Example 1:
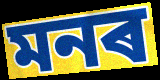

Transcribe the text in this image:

মনৰ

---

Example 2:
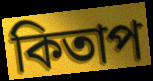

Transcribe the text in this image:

কিতাপ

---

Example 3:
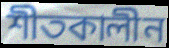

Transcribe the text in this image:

শীতকালীন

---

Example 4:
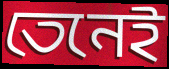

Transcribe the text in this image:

তেনেই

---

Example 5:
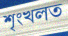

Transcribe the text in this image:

শৃংখলত